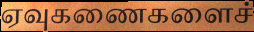
ஏவுகணைகளைச்